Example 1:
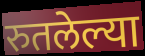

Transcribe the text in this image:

रुतलेल्या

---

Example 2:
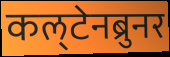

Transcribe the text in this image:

कल्टेनब्रुनर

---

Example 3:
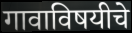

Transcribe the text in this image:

गावाविषयीचे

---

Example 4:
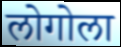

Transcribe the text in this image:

लोगोला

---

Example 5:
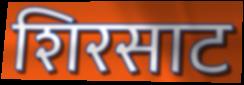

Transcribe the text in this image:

शिरसाट